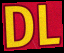
DL